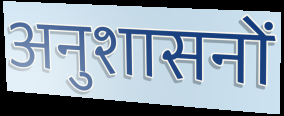
अनुशासनों